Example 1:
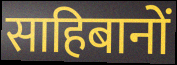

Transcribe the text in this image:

साहिबानों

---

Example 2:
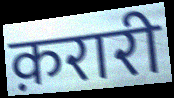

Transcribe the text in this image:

क़रारी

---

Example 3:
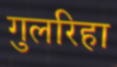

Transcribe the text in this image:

गुलरिहा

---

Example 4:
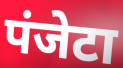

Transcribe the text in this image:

पंजेटा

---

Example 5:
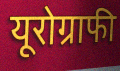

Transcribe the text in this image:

यूरोग्राफी